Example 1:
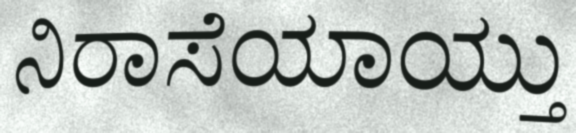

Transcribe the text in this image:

ನಿರಾಸೆಯಾಯ್ತು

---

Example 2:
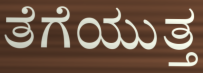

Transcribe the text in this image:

ತೆಗೆಯುತ್ತ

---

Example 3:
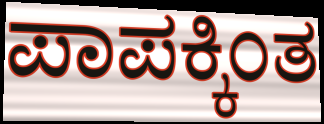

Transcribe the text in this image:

ಪಾಪಕ್ಕಿಂತ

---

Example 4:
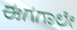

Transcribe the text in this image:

ಈಗಗಾಲೇ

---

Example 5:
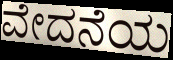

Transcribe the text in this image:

ವೇದನೆಯ